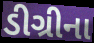
ડીગ્રીના